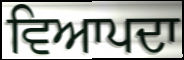
ਵਿਆਪਦਾ